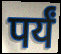
पर्यं